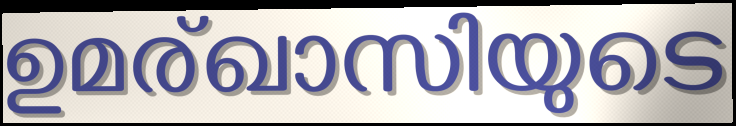
ഉമര്ഖാസിയുടെ